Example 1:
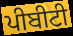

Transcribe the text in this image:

ਪੀਬੀਟੀ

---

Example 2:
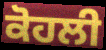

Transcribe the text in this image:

ਕੋਹਲੀ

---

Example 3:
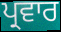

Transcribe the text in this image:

ਪ੍ਰਵਾਰ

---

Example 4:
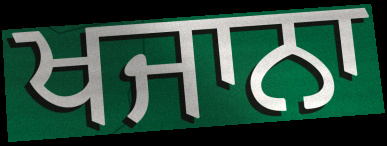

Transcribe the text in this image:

ਖਜਾਨਾ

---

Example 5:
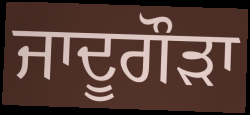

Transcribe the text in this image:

ਜਾਦੂਗੌੜਾ